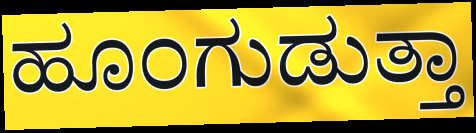
ಹೂಂಗುಡುತ್ತಾ